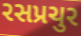
રસપ્રચુર